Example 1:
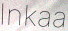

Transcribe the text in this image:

Inkaa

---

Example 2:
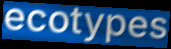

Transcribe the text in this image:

ecotypes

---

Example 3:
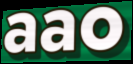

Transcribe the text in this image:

aao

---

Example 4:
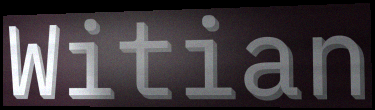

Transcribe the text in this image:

Witian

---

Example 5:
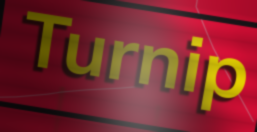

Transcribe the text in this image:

Turnip